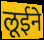
लूईने